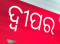
ଦ୍ଵୀପର